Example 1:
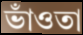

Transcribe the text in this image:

ভাঁওতা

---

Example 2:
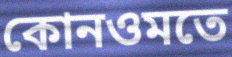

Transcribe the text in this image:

কোনওমতে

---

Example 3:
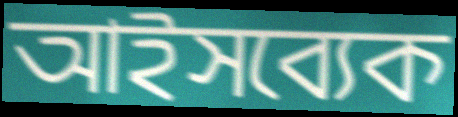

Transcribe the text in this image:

আইসব্যেক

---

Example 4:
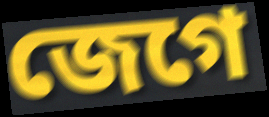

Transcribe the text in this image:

জেগে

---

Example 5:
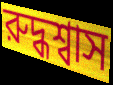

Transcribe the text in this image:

রুদ্ধশ্বাস